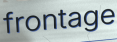
frontage